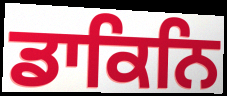
ਡਾਕਿਨਿ